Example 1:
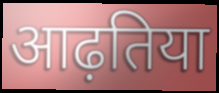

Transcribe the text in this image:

आढ़तिया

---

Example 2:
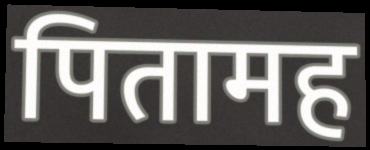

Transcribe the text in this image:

पितामह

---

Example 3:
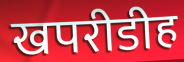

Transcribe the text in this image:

खपरीडीह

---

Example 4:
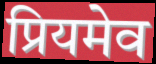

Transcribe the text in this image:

प्रियमेव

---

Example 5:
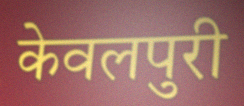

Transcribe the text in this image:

केवलपुरी